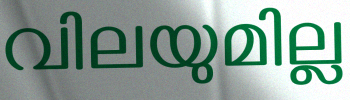
വിലയുമില്ല